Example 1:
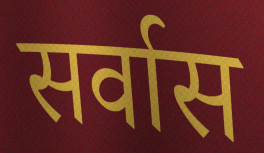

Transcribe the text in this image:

सर्वास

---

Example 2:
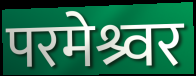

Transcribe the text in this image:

परमेश्र्वर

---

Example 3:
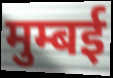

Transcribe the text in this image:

मुम्बई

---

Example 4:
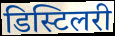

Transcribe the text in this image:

डिस्टिलरी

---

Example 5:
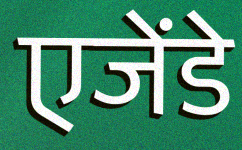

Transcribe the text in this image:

एजेंडे